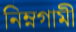
নিম্নগামী